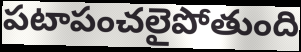
పటాపంచలైపోతుంది